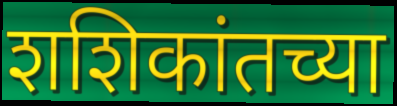
शशिकांतच्या